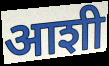
आशी